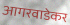
आगरवाडेकर